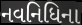
નવનિધિના